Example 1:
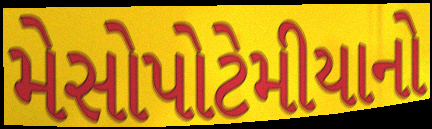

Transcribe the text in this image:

મેસોપોટેમીયાનો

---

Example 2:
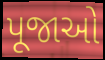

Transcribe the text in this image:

પૂજાઓ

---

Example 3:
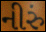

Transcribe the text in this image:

નીરું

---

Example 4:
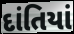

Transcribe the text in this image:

દાંતિયાં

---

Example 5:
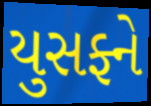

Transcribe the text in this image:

યુસફ્ને